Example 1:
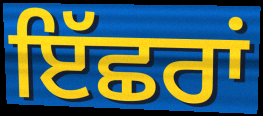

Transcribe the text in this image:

ਇੱਛਰਾਂ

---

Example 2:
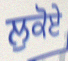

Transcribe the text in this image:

ਲੁਕੋਏ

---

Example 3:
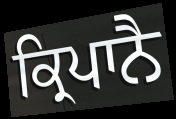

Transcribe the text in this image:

ਕ੍ਰਿਪਾਨੈ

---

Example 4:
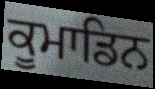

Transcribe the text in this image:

ਕੂਮਾਡਿਨ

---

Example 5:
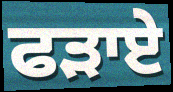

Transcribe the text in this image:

ਫੜਾਏ